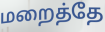
மறைத்தே